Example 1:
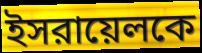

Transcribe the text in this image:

ইসরায়েলকে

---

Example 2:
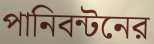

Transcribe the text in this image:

পানিবন্টনের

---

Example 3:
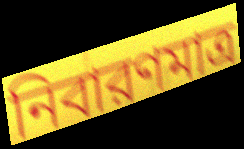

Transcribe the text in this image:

নিবারণমাত্র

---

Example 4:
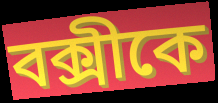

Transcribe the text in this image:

বক্সীকে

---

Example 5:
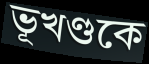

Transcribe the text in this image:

ভূখণ্ডকে